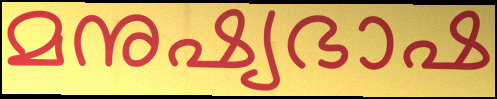
മനുഷ്യഭാഷ